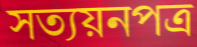
সত্যয়নপত্র